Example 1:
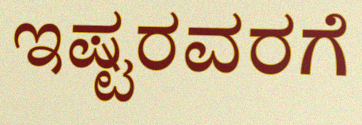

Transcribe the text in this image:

ಇಷ್ಟರವರಗೆ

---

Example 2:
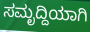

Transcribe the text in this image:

ಸಮೃದ್ದಿಯಾಗಿ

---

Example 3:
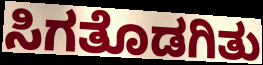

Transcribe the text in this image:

ಸಿಗತೊಡಗಿತು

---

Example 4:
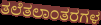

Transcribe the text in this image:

ತಲೆತಲಾಂತರಗಳ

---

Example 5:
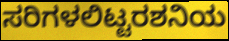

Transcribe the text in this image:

ಸರಿಗಳಲಿಟ್ಟರಶನಿಯ